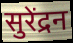
सुरेंद्रन